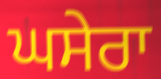
ਘਸੇਰਾ